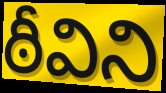
ఠీవిని